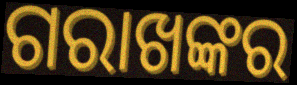
ଗରାଖଙ୍କର